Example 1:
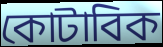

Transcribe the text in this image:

কোটাবিক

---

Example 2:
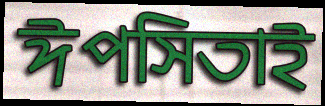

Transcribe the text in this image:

ঈপসিতাই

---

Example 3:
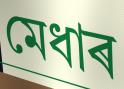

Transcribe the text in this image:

মেধাৰ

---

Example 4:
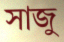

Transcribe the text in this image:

সাজু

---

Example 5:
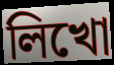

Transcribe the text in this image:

লিখো